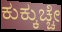
ಕುಕ್ಕುಚ್ಚೇ